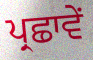
ਪ੍ਰਛਾਵੇਂ